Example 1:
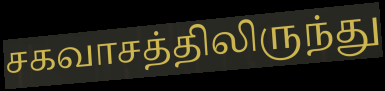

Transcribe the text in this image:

சகவாசத்திலிருந்து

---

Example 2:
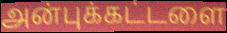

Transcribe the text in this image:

அன்புக்கட்டளை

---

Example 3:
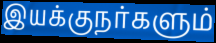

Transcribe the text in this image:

இயக்குநர்களும்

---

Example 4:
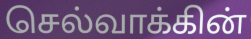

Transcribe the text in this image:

செல்வாக்கின்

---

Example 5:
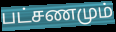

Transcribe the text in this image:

பட்சணமும்